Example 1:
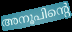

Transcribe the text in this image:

അനൂപിന്റെ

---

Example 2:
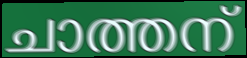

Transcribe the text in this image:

ചാത്തന്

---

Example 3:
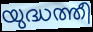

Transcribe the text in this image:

യുദ്ധത്തീ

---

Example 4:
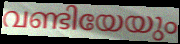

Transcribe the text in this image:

വണ്ടിയേയും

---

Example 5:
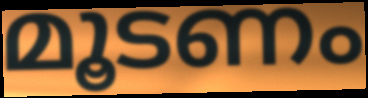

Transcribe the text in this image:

മൂടണം